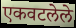
एकवटलेले